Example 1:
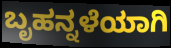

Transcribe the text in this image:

ಬೃಹನ್ನಳೆಯಾಗಿ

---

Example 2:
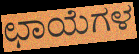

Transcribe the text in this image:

ಛಾಯೆಗಳ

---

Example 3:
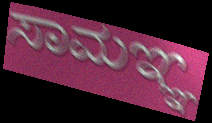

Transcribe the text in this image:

ಸಾಮಞ್ಞ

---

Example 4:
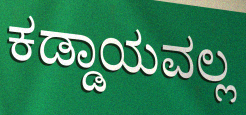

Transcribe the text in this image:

ಕಡ್ಡಾಯವಲ್ಲ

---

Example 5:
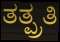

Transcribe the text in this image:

ತತ್ಪ್ರತಿ